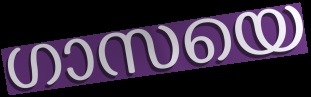
ഗാസയെ